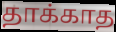
தாக்காத